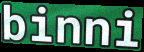
binni